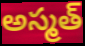
అస్మత్